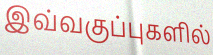
இவ்வகுப்புகளில்